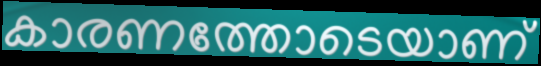
കാരണത്തോടെയാണ്